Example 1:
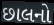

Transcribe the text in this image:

છાલનો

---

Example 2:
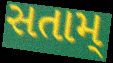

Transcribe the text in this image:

સતામ્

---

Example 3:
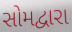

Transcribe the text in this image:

સોમદ્વારા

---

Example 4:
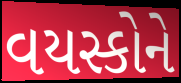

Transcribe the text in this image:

વયસ્કોને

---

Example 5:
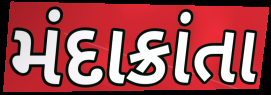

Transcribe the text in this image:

મંદાક્રાંતા